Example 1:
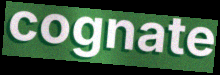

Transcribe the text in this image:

cognate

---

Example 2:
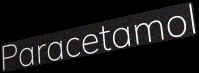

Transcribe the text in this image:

Paracetamol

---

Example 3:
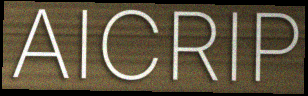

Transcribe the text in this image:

AICRIP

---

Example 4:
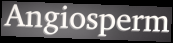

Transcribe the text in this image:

Angiosperm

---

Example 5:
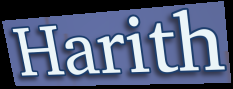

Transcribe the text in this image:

Harith